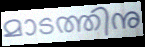
മാടത്തിനു